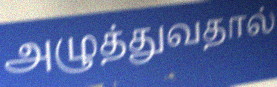
அழுத்துவதால்